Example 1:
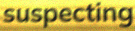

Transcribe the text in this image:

suspecting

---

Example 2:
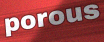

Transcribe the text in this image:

porous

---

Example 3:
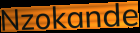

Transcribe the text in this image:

Nzokande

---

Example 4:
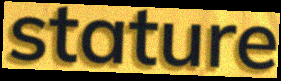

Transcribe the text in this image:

stature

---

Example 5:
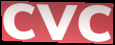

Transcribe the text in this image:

cvc